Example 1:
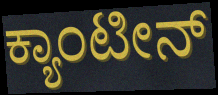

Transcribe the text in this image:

ಕ್ಯಾಂಟೀನ್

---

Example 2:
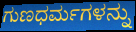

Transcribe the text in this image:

ಗುಣಧರ್ಮಗಳನ್ನು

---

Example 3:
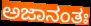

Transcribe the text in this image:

ಅಜಾನಂತಃ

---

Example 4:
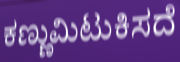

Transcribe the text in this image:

ಕಣ್ಣುಮಿಟುಕಿಸದೆ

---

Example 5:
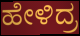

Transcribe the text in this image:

ಹೇಳಿದ್ರ